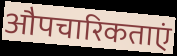
औपचारिकताएं